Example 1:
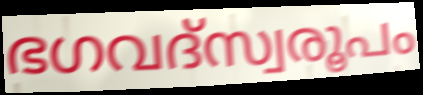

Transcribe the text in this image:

ഭഗവദ്സ്വരൂപം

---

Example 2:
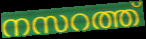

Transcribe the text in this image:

നസറത്ത്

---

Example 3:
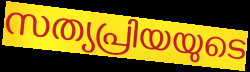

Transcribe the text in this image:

സത്യപ്രിയയുടെ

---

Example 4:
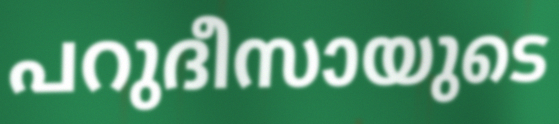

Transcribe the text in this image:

പറുദീസായുടെ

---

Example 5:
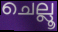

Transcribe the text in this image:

ചെല്ലൂ